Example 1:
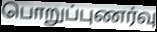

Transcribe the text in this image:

பொறுப்புணர்வு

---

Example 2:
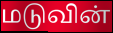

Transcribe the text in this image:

மடுவின்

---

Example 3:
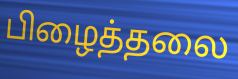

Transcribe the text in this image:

பிழைத்தலை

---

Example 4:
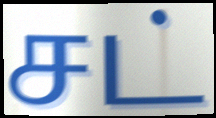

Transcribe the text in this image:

சட்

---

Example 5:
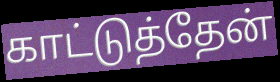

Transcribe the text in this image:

காட்டுத்தேன்